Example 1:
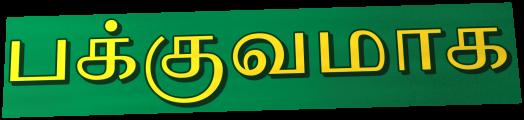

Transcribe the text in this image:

பக்குவமாக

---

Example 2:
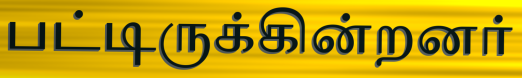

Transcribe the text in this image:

பட்டிருக்கின்றனர்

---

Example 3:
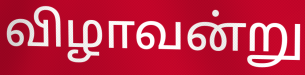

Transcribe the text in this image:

விழாவன்று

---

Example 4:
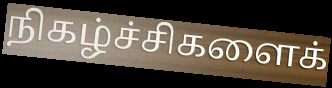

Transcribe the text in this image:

நிகழ்ச்சிகளைக்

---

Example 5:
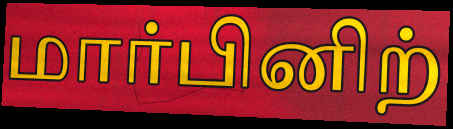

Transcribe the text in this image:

மார்பினிற்